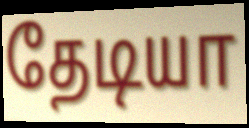
தேடியா